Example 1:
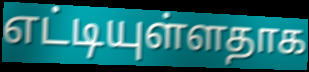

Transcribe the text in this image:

எட்டியுள்ளதாக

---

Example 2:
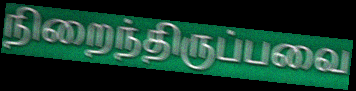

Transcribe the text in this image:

நிறைந்திருப்பவை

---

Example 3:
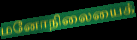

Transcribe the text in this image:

மனோநிலையைக்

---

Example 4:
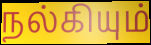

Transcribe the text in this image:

நல்கியும்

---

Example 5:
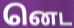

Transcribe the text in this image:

னெட